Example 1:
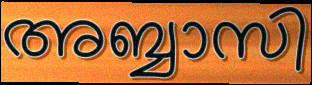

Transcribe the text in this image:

അബ്ബാസി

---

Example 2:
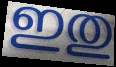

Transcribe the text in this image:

ഇതു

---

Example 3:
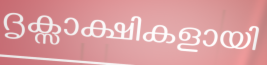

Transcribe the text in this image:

ദൃക്സാക്ഷികളായി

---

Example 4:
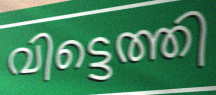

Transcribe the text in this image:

വിട്ടെത്തി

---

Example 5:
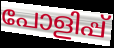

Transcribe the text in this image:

പോളിപ്പ്